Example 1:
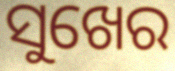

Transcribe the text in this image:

ସୁଖେର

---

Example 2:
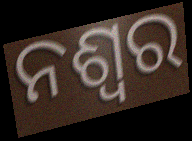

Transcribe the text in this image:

ନଶ୍ଵର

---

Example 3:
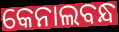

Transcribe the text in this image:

କେନାଲବନ୍ଧ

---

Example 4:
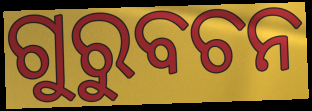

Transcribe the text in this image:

ଗୁରୁବଚନ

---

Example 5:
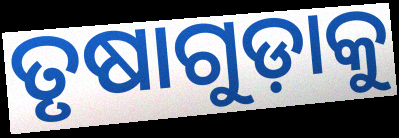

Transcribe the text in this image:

ତୃଷାଗୁଡ଼ାକୁ